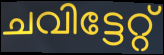
ചവിട്ടേറ്റ്